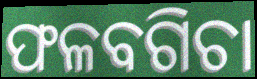
ଫଳବଗିଚା